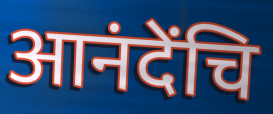
आनंदेंचि